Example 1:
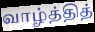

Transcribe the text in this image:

வாழ்த்தித்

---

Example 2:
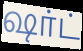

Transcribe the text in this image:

ஷர்ட்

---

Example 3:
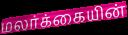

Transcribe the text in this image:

மலர்க்கையின்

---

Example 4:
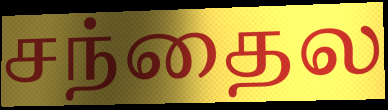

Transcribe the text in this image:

சந்தைல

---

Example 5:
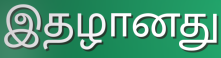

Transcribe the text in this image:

இதழானது